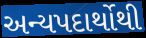
અન્યપદાર્થોથી